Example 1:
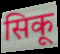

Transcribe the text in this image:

सिकू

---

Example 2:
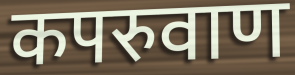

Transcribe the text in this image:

कपरुवाण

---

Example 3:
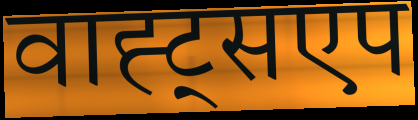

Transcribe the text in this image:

वाह्ट्सएप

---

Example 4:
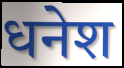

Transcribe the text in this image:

धनेश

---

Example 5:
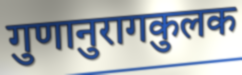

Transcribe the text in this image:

गुणानुरागकुलक